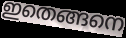
ഇതെങ്ങനെ